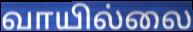
வாயில்லை